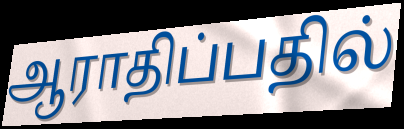
ஆராதிப்பதில்